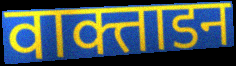
वाक्ताडन